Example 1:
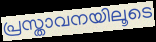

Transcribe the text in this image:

പ്രസ്താവനയിലൂടെ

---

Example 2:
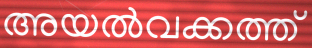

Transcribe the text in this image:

അയൽവക്കത്ത്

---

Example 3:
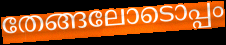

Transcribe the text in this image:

തേങ്ങലോടൊപ്പം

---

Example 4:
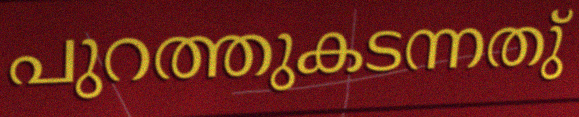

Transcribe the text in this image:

പുറത്തുകടന്നതു്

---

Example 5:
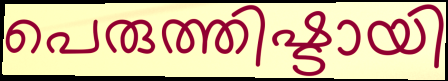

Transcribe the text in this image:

പെരുത്തിഷ്ടായി